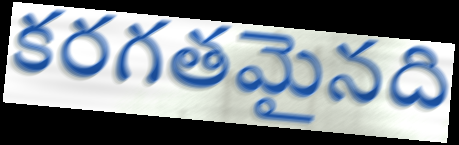
కరగతమైనది